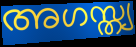
അഗസ്ത്യ